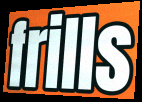
frills